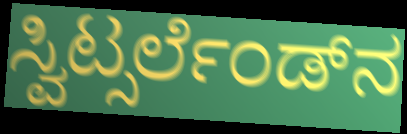
ಸ್ವಿಟ್ಸರ್ಲೆಂಡ್‌ನ